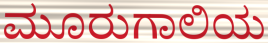
ಮೂರುಗಾಲಿಯ